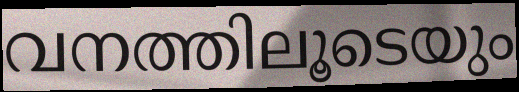
വനത്തിലൂടെയും